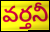
వర్తనీ